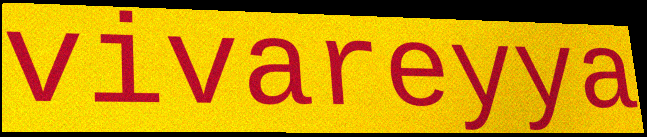
vivareyya